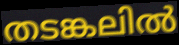
തടങ്കലിൽ